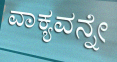
ವಾಕ್ಯವನ್ನೇ